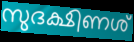
സുദക്ഷിണശ്